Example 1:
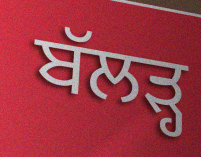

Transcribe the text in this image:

ਬੱਲੜ੍ਹ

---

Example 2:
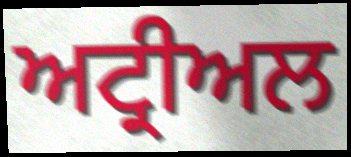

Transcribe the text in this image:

ਅਟ੍ਰੀਅਲ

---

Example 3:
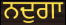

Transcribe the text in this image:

ਨਦੁਗਾ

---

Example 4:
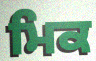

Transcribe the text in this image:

ਮਿਕ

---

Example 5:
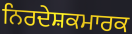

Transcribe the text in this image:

ਨਿਰਦੇਸ਼ਕਮਾਰਕ